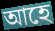
আহে